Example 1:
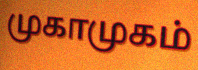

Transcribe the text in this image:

முகாமுகம்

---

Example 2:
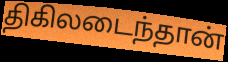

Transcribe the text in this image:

திகிலடைந்தான்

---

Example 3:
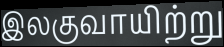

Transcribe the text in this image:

இலகுவாயிற்று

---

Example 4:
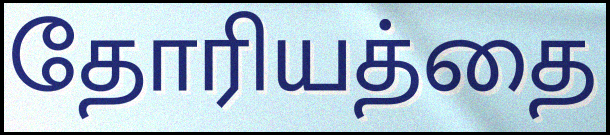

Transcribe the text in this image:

தோரியத்தை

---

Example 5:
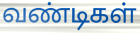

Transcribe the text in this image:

வண்டிகள்